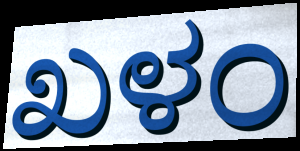
ಖಳಂ